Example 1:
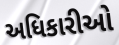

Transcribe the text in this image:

અધિકારીઓ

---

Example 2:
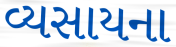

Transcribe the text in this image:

વ્યસાયના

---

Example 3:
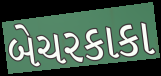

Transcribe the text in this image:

બેચરકાકા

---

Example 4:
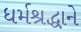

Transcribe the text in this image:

ધર્મશ્રદ્ધાને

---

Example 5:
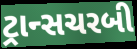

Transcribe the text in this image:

ટ્રાન્સચરબી